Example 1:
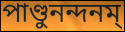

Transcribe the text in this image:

পাণ্ডুনন্দনম্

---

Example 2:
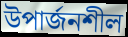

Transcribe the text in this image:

উপার্জনশীল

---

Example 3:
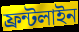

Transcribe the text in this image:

ফ্রন্টলাইন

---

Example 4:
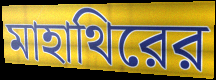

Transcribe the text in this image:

মাহাথিরের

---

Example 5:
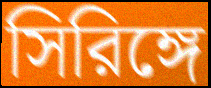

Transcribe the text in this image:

সিরিঙ্গে